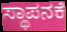
ಸ್ಥಾಪನಕೆ